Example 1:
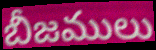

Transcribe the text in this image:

బీజములు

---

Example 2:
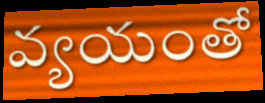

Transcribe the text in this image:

వ్యయంతో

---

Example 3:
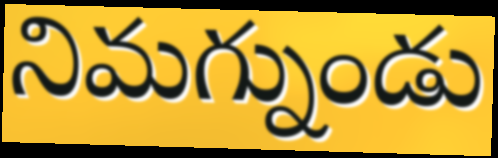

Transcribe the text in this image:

నిమగ్నుండు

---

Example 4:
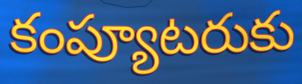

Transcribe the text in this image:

కంప్యూటరుకు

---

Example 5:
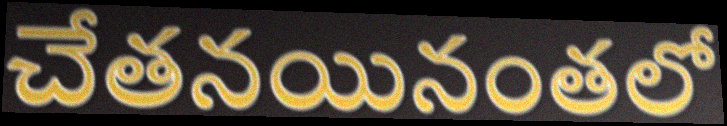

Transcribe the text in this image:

చేతనయినంతలో